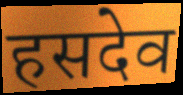
हसदेव